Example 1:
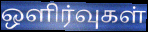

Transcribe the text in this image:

ஒளிர்வுகள்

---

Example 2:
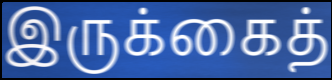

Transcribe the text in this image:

இருக்கைத்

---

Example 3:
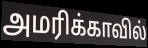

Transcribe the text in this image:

அமரிக்காவில்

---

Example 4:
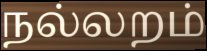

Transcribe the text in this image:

நல்லறம்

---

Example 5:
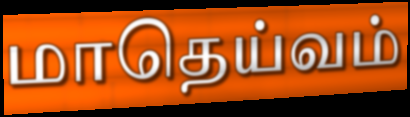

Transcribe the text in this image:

மாதெய்வம்